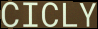
CICLY